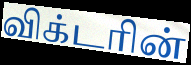
விக்டரின்